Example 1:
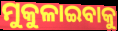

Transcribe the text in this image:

ମୁକୁଳାଇବାକୁ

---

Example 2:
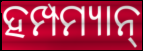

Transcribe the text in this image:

ହମ୍ପମ୍ୟାନ୍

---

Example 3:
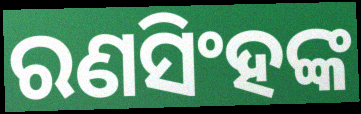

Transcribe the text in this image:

ରଣସିଂହଙ୍କ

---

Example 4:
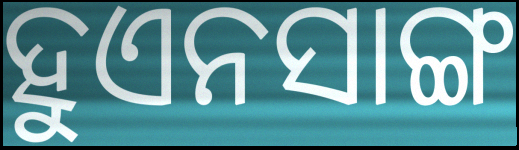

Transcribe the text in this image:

ହୁଏନସାଙ୍ଗ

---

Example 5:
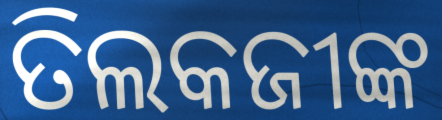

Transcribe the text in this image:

ତିଲକଜୀଙ୍କ